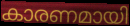
കാരണമായി